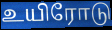
உயிரோடு